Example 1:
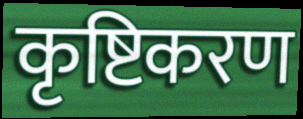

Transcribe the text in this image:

कृष्टिकरण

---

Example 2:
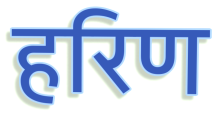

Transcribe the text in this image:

हरिण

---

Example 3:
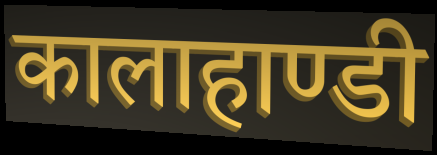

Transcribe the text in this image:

कालाहाण्डी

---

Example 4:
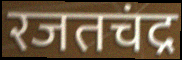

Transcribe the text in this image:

रजतचंद्र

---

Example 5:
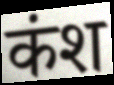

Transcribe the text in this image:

कंश